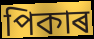
পিকাৰ